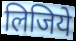
लिजिये